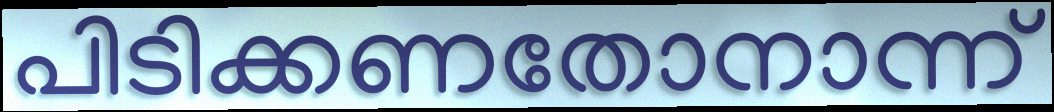
പിടിക്കണതോനാന്ന്